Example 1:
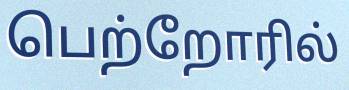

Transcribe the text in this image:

பெற்றோரில்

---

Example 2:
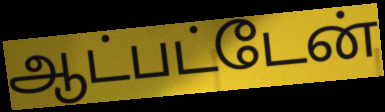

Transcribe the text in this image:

ஆட்பட்டேன்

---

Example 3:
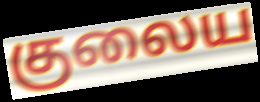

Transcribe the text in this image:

குலைய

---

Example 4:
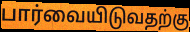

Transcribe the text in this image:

பார்வையிடுவதற்கு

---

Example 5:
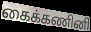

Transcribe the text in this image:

கைக்கணினி